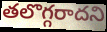
తలొగ్గరాదని